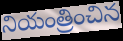
నియంత్రించిన